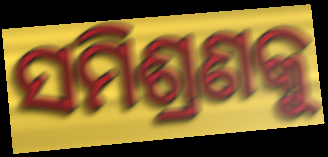
ସମିଶ୍ରଣକୁ